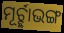
ମୂର୍ଚ୍ଛାଭଙ୍ଗ